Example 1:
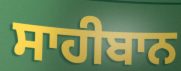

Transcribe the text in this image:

ਸਾਹੀਬਾਨ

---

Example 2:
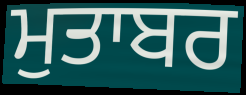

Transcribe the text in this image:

ਮੁਤਾਬਰ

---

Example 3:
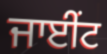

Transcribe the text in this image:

ਜਾਈਂਟ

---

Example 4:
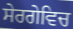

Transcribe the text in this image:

ਸੇਰਗੇਵਿਚ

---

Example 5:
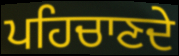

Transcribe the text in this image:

ਪਹਿਚਾਣਦੇ